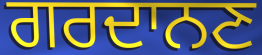
ਗਰਦਾਨਣ